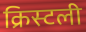
क्रिस्टली